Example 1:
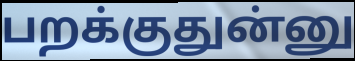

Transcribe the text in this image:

பறக்குதுன்னு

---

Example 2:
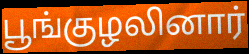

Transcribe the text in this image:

பூங்குழலினார்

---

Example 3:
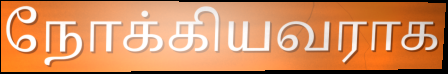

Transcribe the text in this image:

நோக்கியவராக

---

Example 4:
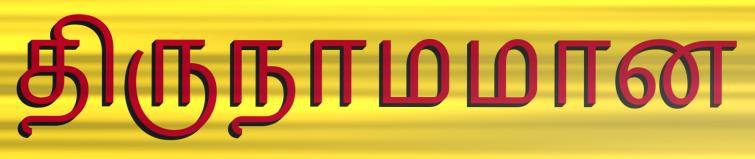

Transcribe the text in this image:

திருநாமமான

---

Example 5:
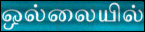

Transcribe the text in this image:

ஒல்லையில்